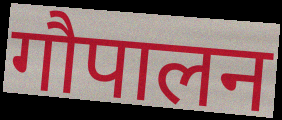
गौपालन